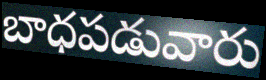
బాధపడువారు